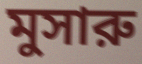
মুসারু